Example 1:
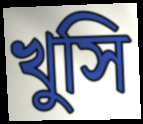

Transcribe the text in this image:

খুসি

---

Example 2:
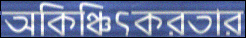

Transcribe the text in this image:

অকিঞ্চিৎকরতার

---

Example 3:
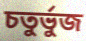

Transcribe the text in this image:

চতুর্ভুজ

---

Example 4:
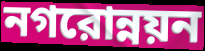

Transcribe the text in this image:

নগরোন্নয়ন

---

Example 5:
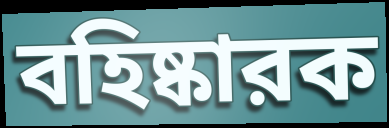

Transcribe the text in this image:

বহিষ্কারক